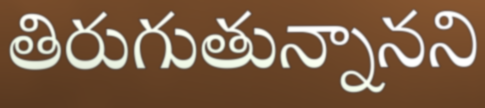
తిరుగుతున్నానని